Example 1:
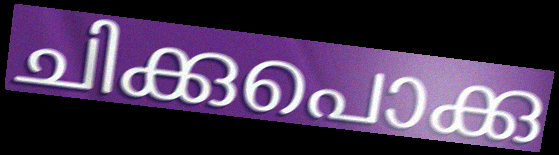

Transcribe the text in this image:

ചിക്കുപൊക്കു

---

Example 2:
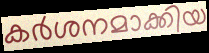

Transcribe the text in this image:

കർശനമാക്കിയ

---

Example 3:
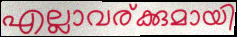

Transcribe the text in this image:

എല്ലാവര്ക്കുമായി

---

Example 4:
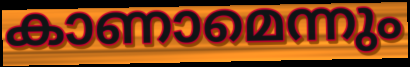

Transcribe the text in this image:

കാണാമെന്നും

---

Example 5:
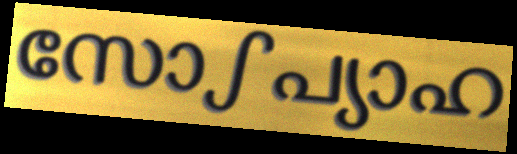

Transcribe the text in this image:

സോഽപ്യാഹ